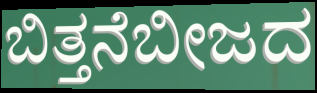
ಬಿತ್ತನೆಬೀಜದ